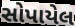
સોપાયેલ